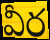
వీర